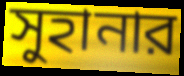
সুহানার